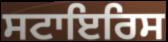
ਸਟਾਇਰਿਸ